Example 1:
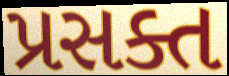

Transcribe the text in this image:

પ્રસક્ત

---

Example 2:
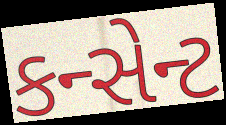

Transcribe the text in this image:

કન્સેન્ટ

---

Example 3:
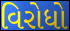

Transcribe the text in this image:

વિરોધો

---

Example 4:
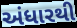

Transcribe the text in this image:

અંધારથી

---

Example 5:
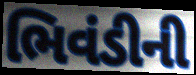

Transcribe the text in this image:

ભિવંડીની